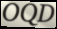
OQD